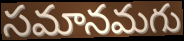
సమానమగు